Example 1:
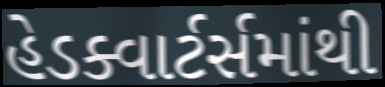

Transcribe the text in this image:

હેડક્વાર્ટર્સમાંથી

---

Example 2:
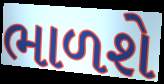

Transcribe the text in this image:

ભાળશે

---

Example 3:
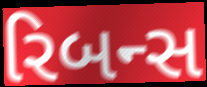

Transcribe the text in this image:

રિબન્સ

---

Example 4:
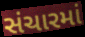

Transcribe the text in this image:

સંચારમાં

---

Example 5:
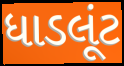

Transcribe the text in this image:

ધાડલૂંટ